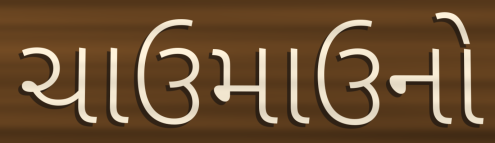
ચાઉમાઉનો